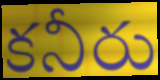
కనీరు